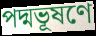
পদ্মভূষণে